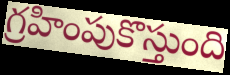
గ్రహింపుకొస్తుంది